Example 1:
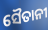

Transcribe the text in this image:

ସୈତାନୀ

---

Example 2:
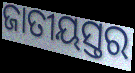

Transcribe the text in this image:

ଜାତୀୟସ୍ତର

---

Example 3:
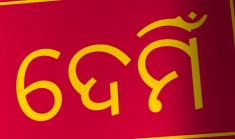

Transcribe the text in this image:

ଦେମିଁ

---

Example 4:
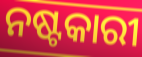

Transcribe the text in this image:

ନଷ୍ଟକାରୀ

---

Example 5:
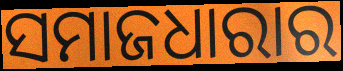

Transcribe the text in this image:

ସମାଜଧାରାର